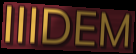
IIIDEM